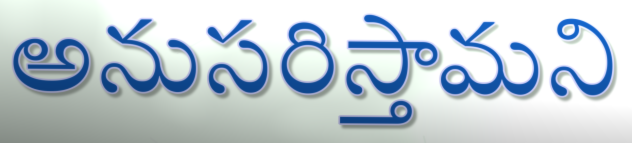
అనుసరిస్తామని